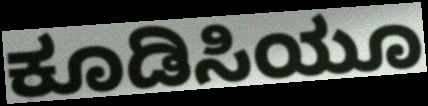
ಕೂಡಿಸಿಯೂ